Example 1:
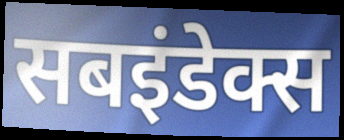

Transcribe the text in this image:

सबइंडेक्स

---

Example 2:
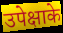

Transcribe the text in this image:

उपेक्षाके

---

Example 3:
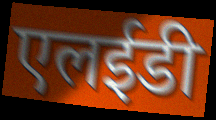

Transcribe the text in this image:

एलईडी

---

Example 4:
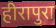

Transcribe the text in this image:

हीरापुरा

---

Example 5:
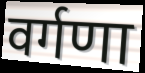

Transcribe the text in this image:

वर्गणा